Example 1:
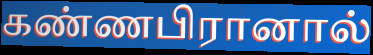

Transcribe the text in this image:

கண்ணபிரானால்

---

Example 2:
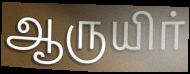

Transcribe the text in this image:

ஆருயிர்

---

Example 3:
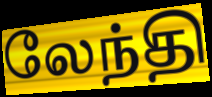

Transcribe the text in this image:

லேந்தி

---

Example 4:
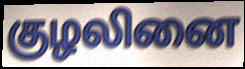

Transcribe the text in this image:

குழலினை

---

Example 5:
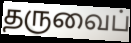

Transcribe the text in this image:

தருவைப்